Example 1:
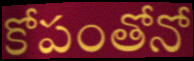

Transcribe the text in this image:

కోపంతోనో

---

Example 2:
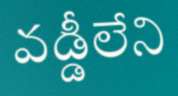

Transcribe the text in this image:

వడ్డీలేని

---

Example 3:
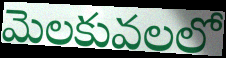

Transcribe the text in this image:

మెలకువలలో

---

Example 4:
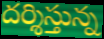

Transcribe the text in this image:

దర్శిస్తున్న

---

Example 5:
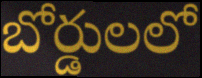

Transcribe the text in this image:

బోర్డులలో